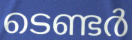
ടെണ്ടർ